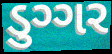
ડુગ્ગર